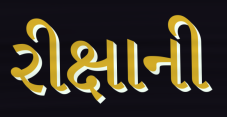
રીક્ષાની